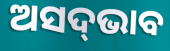
ଅସଦ୍‌ଭାବ